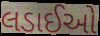
લડાઈઓ